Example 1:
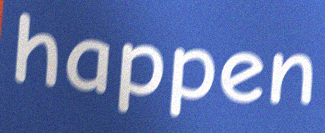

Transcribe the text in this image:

happen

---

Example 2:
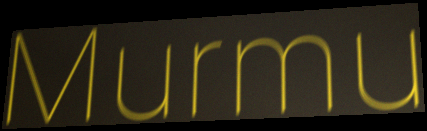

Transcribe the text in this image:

Murmu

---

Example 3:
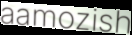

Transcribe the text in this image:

aamozish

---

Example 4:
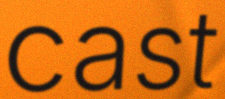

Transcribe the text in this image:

cast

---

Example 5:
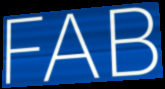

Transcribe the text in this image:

FAB